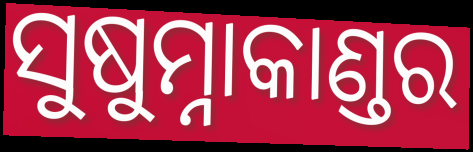
ସୁଷୁମ୍ନାକାଣ୍ଡର